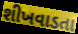
શીખવાડતા